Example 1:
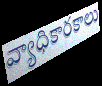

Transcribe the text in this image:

వ్యాధికారకాలు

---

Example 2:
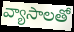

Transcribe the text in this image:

వ్యాసాలతో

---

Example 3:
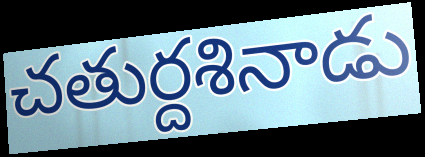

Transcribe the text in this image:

చతుర్దశినాడు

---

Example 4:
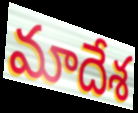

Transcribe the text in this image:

మాదేశ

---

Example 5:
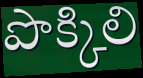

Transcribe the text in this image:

పొక్కిలి